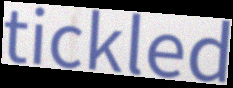
tickled